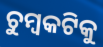
ଚୁମ୍ବକଟିକୁ